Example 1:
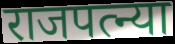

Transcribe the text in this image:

राजपत्न्या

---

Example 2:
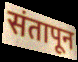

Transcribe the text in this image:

संतापून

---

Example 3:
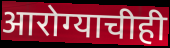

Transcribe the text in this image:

आरोग्याचीही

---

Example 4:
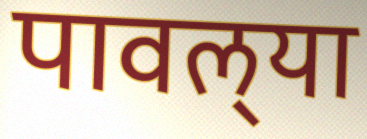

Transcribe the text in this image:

पावल्या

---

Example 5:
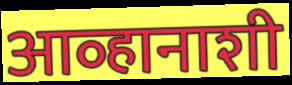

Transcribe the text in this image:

आव्हानाशी